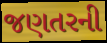
જણતરની